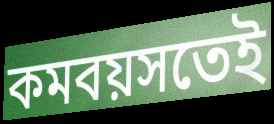
কমবয়সতেই